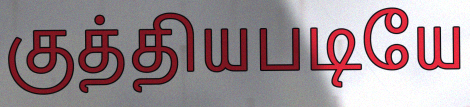
குத்தியபடியே